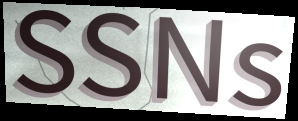
SSNs